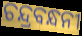
ଚନ୍ଦ୍ରବନ୍ଧନୀ